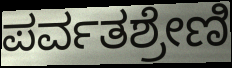
ಪರ್ವತಶ್ರೇಣಿ